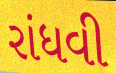
રાંધવી